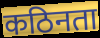
कठिनता